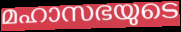
മഹാസഭയുടെ